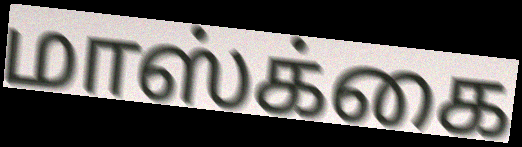
மாஸ்க்கை